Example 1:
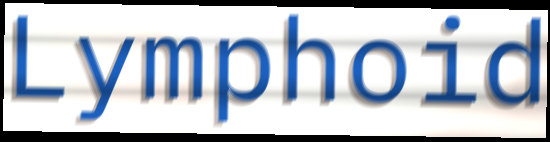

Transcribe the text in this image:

Lymphoid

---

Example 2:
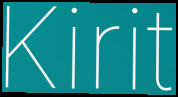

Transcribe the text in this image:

Kirit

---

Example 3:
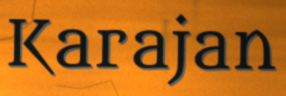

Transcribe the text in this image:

Karajan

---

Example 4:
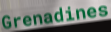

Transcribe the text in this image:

Grenadines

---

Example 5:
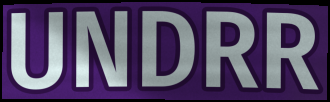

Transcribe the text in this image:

UNDRR